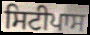
ਸਿਟੀਪਾਸ